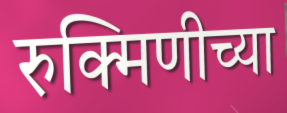
रुक्मिणीच्या